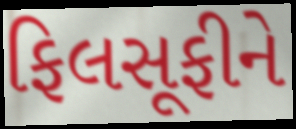
ફિલસૂફીને